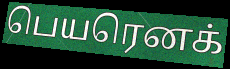
பெயரெனக்